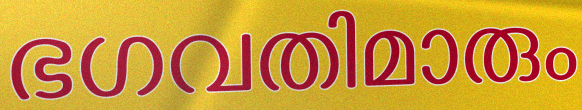
ഭഗവതിമാരും